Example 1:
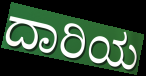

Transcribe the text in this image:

ದಾರಿಯ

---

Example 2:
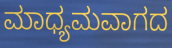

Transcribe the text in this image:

ಮಾಧ್ಯಮವಾಗದ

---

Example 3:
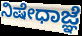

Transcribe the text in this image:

ನಿಷೇಧಾಜ್ಞೆ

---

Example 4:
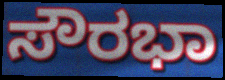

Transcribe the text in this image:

ಸೌರಭಾ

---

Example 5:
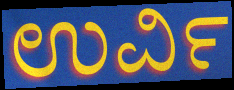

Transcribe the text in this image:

ಉರ್ವಿ